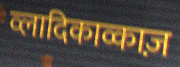
व्लादिकाव्काज़